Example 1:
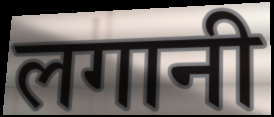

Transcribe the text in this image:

लगानी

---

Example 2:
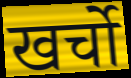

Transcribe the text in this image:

खर्चो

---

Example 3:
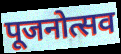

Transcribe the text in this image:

पूजनोत्सव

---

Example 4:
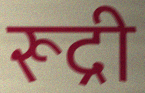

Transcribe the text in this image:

रूद्री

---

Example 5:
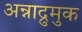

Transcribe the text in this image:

अन्नाद्रुमुक